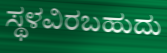
ಸ್ಥಳವಿರಬಹುದು